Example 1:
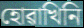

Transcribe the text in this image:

হোৱাখিনি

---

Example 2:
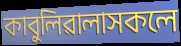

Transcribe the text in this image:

কাবুলিৱালাসকলে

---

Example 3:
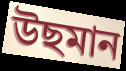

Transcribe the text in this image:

উছমান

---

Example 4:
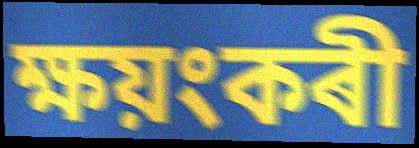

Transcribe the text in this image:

ক্ষয়ংকৰী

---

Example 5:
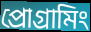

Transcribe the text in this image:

প্ৰোগ্ৰামিং